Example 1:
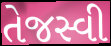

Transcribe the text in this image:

તેજસ્વી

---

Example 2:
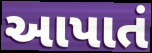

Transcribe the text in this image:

આપાતં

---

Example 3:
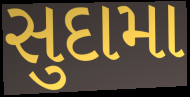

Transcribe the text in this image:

સુદામા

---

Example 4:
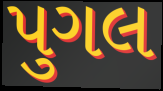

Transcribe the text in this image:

પુગલ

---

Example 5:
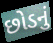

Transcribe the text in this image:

છોડનું